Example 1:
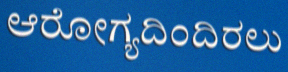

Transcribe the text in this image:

ಆರೋಗ್ಯದಿಂದಿರಲು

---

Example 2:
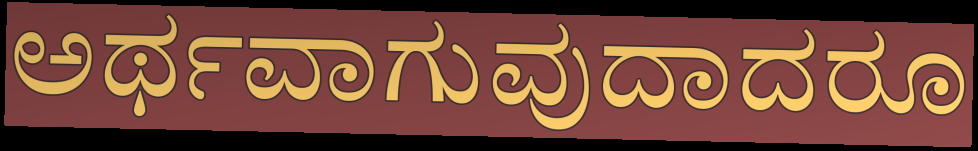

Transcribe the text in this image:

ಅರ್ಥವಾಗುವುದಾದರೂ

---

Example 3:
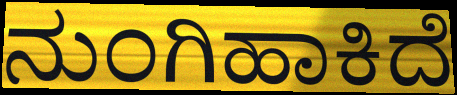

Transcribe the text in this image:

ನುಂಗಿಹಾಕಿದೆ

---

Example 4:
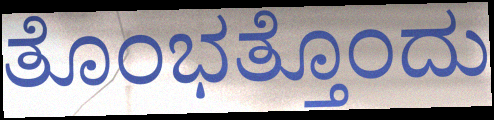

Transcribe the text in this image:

ತೊಂಭತ್ತೊಂದು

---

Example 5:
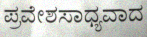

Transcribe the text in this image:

ಪ್ರವೇಶಸಾಧ್ಯವಾದ